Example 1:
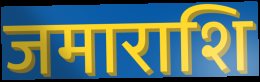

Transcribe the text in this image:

जमाराशि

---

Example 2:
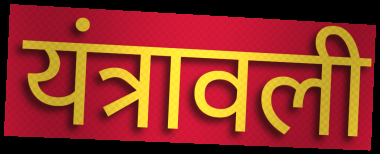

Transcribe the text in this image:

यंत्रावली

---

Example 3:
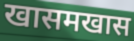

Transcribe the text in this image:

खासमखास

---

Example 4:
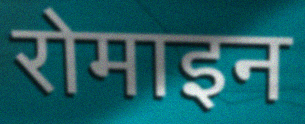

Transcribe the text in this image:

रोमाइन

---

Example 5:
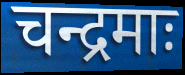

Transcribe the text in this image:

चन्द्रमाः